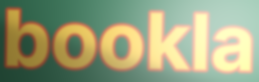
bookla